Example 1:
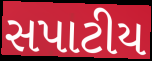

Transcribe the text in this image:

સપાટીય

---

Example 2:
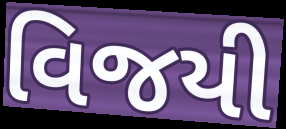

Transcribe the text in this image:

વિજયી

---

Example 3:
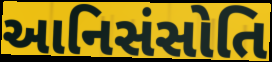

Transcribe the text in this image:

આનિસંસોતિ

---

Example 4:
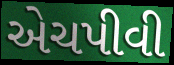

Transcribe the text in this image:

એચપીવી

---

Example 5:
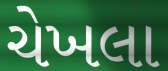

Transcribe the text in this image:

ચેખલા